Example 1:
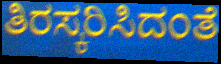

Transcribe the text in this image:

ತಿರಸ್ಕರಿಸಿದಂತೆ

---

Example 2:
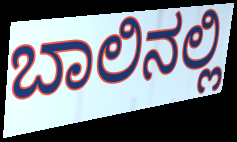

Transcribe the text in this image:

ಬಾಲಿನಲ್ಲಿ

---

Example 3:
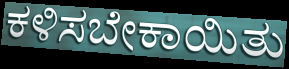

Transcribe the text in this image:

ಕಳಿಸಬೇಕಾಯಿತು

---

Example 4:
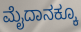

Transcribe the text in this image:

ಮೈದಾನಕ್ಕೂ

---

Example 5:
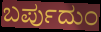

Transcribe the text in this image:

ಬರ್ಪುದುಂ